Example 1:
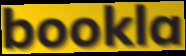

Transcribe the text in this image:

bookla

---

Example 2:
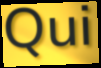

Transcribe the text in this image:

Qui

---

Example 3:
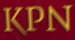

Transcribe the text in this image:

KPN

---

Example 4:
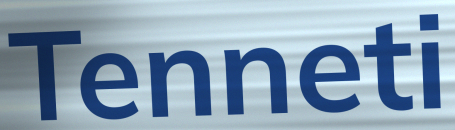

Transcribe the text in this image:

Tenneti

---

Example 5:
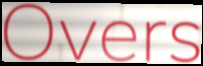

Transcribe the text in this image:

Overs